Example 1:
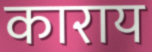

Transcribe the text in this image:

काराय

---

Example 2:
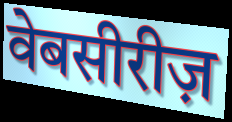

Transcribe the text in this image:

वेबसीरीज़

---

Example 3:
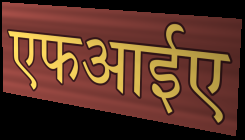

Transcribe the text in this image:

एफआईए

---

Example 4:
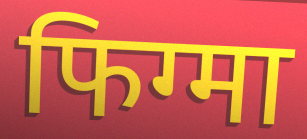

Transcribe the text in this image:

फिग्मा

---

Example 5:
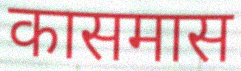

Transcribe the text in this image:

कासमास